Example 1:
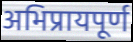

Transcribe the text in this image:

अभिप्रायपूर्ण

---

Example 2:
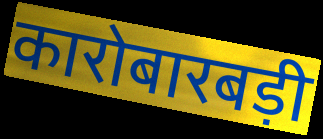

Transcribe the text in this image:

कारोबारबड़ी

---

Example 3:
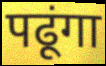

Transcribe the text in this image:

पढूंगा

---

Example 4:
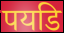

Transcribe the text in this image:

पयडि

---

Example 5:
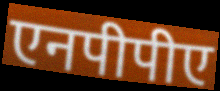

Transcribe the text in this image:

एनपीपीए